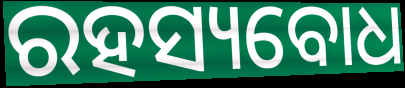
ରହସ୍ୟବୋଧ